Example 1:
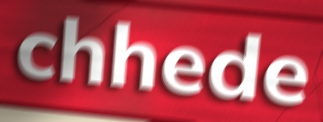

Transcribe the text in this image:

chhede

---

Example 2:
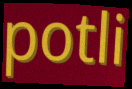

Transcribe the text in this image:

potli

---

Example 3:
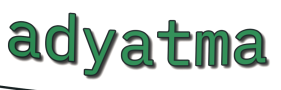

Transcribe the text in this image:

adyatma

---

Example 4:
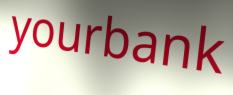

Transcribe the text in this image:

yourbank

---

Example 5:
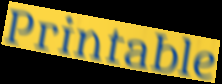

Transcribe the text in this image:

Printable